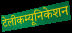
टेलीकम्‍यूनिकेशन